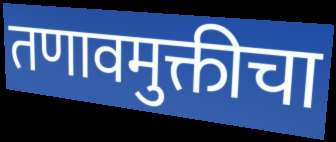
तणावमुक्तीचा